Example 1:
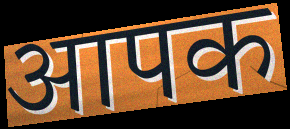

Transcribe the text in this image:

आपक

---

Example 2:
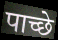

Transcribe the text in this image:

पाच्छे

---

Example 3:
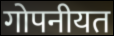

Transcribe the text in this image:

गोपनीयत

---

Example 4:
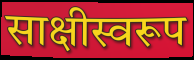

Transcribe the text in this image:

साक्षीस्वरूप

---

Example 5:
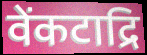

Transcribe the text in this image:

वेंकटाद्रि